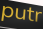
putr